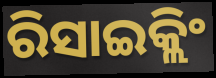
ରିସାଇକ୍ଲିଂ